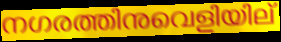
നഗരത്തിനുവെളിയില്